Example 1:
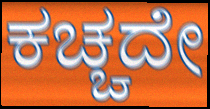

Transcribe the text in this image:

ಕಚ್ಚದೇ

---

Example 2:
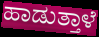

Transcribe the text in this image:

ಹಾಡುತ್ತಾಳೆ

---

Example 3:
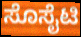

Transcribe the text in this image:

ಸೊಸೈಟಿ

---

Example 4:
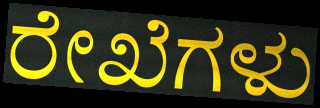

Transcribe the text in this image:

ರೇಖೆಗಳು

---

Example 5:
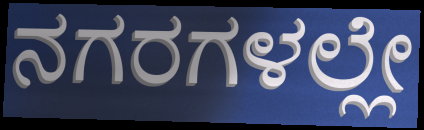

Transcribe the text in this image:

ನಗರಗಳಲ್ಲೇ